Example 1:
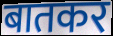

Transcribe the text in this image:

बातकर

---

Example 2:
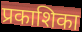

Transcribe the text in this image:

प्रकाशिका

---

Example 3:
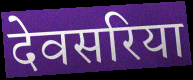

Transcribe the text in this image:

देवसरिया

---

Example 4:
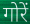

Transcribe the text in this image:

गोरें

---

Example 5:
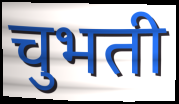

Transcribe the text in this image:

चुभती